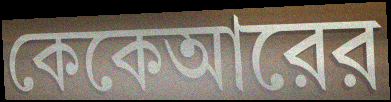
কেকেআরের